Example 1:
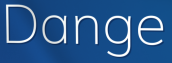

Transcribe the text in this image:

Dange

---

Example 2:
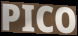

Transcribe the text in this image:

PICO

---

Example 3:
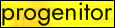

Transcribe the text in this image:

progenitor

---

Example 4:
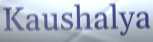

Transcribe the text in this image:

Kaushalya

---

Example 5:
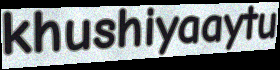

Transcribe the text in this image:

khushiyaaytu